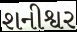
શનીશ્વર